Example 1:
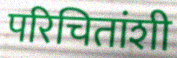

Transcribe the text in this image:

परिचितांशी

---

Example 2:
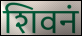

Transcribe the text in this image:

शिवनं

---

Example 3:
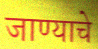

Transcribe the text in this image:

जाण्याचे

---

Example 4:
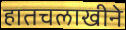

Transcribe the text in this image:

हातचलाखीने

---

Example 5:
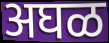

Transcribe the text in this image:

अघळ